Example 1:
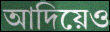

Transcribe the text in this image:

আদিয়েও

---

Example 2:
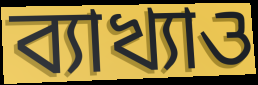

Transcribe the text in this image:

ব্যাখ্যাও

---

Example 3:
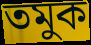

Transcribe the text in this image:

তমুক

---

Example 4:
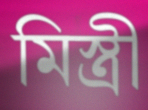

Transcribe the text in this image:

মিস্ত্ৰী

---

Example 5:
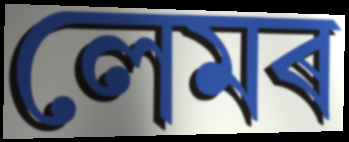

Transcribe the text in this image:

লেমৰ